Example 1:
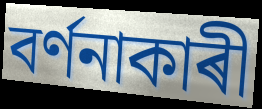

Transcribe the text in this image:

বৰ্ণনাকাৰী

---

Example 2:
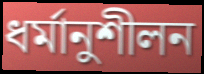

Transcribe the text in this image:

ধৰ্মানুশীলন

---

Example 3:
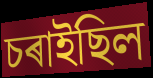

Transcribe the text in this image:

চৰাইছিল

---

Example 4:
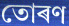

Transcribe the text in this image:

তোৰণ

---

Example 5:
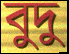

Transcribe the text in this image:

বুদু